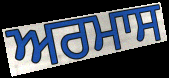
ਅਰਮਾਸ